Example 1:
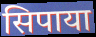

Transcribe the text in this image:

सिपाया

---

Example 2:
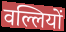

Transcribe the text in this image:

वल्लियों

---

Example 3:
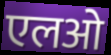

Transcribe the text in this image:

एलओ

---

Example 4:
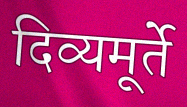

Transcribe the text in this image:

दिव्यमूर्ते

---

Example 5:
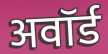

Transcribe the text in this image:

अवॉर्ड